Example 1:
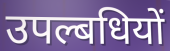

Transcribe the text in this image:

उपल्बधियों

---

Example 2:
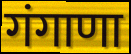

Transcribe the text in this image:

गंगाणा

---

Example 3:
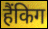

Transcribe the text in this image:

हैंकिग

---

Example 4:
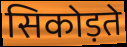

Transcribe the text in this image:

सिकोड़ते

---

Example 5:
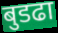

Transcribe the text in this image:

बुडढा